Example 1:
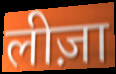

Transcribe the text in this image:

लीज़ा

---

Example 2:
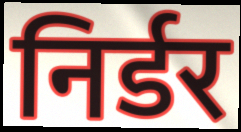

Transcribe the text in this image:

निर्डर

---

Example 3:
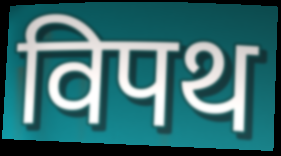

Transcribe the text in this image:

विपथ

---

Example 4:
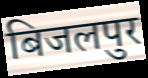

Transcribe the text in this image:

बिजलपुर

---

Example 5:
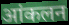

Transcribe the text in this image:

आंकलन